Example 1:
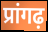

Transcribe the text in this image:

प्रांगढ़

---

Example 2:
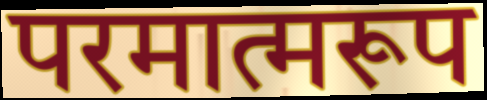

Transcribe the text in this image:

परमात्मरूप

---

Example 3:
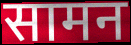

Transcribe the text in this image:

सामन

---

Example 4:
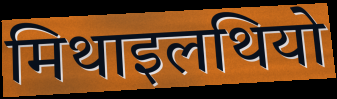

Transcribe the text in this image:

मिथाइलथियो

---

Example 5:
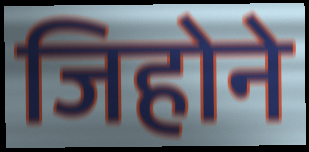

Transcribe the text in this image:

जिहोने